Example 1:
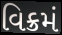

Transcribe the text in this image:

વિક્રમં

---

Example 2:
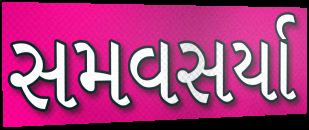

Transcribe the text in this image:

સમવસર્યા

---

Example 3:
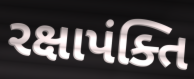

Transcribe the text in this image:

રક્ષાપંક્તિ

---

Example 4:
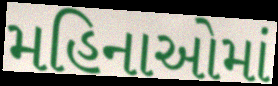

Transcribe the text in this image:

મહિનાઓમાં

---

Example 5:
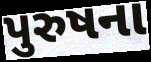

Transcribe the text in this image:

પુરુષના